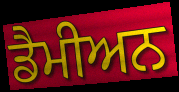
ਡੈਮੀਅਨ